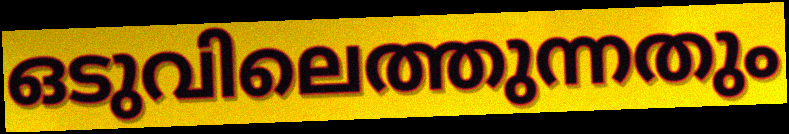
ഒടുവിലെത്തുന്നതും